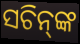
ସଚିନ୍‌ଙ୍କ